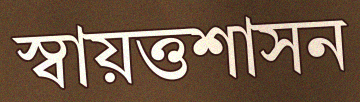
স্বায়ত্তশাসন